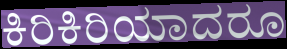
ಕಿರಿಕಿರಿಯಾದರೂ